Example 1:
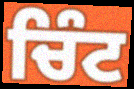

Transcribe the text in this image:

ਚਿੰਟ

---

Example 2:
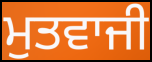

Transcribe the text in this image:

ਮੁਤਵਾਜੀ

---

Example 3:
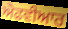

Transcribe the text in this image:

ਐਫਵੀਆਰ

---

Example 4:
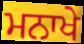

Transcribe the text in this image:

ਮਨਾਖੇ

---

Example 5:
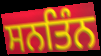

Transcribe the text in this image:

ਸਨਤਿੰਨ